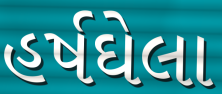
હર્ષઘેલા